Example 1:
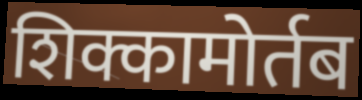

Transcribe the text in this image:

शिक्‍कामोर्तब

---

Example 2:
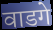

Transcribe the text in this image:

वाडगे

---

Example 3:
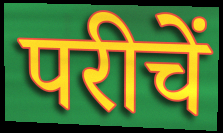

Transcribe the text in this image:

परीचें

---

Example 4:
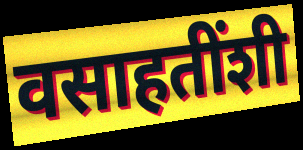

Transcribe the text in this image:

वसाहतींशी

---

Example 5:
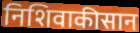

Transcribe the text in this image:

निशिवाकीसान